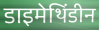
डाइमेथिंडीन